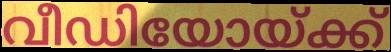
വീഡിയോയ്ക്ക്